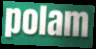
polam